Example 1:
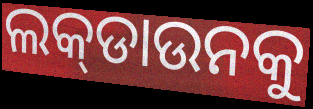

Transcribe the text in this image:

ଲକ୍‌ଡାଉନକୁ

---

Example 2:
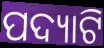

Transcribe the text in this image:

ପଦ୍ୟାଟି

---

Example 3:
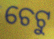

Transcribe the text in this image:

ଚେଟୁ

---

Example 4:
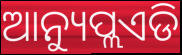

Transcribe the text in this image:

ଆନ୍ୟୁପ୍ଲଏଡି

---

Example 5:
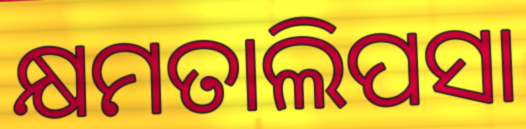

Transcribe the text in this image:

କ୍ଷମତାଲିପସା